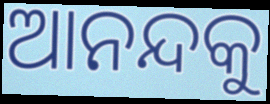
ଆନନ୍ଦକୁ